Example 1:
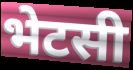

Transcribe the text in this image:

भेटसी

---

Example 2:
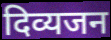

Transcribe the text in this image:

दिव्यजन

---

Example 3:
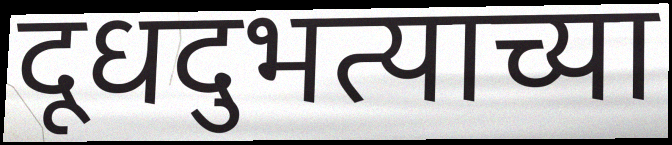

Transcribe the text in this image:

दूधदुभत्याच्या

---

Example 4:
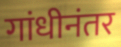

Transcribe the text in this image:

गांधीनंतर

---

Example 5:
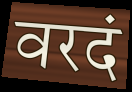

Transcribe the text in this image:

वरदं